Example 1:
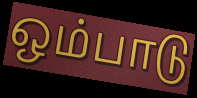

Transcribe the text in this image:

ஒம்பாடு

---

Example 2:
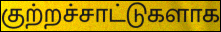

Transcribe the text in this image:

குற்றச்சாட்டுகளாக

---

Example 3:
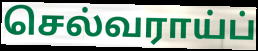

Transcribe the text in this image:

செல்வராய்ப்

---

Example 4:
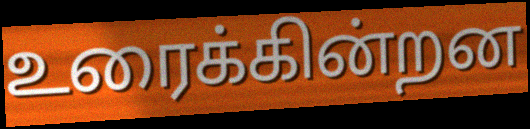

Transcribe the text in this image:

உரைக்கின்றன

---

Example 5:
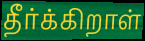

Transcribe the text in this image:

தீர்க்கிறாள்